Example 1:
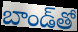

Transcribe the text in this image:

బాండ్‌తో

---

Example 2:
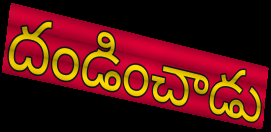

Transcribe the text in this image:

దండించాడు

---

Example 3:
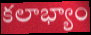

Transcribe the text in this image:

కలాభ్యాం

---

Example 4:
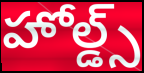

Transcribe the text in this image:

హోల్డ్స్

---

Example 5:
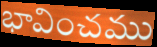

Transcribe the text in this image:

భావించము